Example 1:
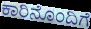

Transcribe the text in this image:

ಕಾರಿನೊಂದಿಗೆ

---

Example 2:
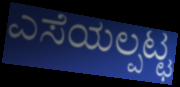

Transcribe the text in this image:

ಎಸೆಯಲ್ಪಟ್ಟ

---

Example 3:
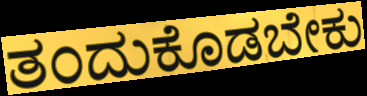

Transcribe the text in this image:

ತಂದುಕೊಡಬೇಕು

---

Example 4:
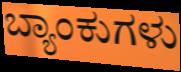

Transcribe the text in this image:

ಬ್ಯಾಂಕುಗಳು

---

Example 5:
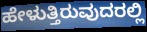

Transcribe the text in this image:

ಹೇಳುತ್ತಿರುವುದರಲ್ಲಿ